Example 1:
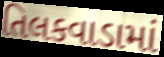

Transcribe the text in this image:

તિલકવાડામાં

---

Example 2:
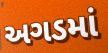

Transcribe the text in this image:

અગડમાં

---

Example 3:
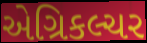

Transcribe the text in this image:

એગ્રિકલ્ચર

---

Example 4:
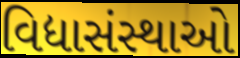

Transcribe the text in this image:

વિદ્યાસંસ્થાઓ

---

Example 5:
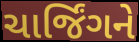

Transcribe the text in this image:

ચાર્જિંગને